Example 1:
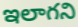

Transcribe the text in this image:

ఇలాగని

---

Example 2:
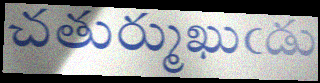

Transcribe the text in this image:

చతుర్ముఖుఁడు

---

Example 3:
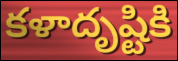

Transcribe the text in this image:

కళాదృష్టికి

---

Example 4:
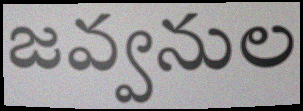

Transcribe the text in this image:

జవ్వనుల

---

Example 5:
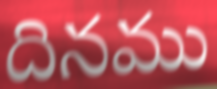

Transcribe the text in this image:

దినము